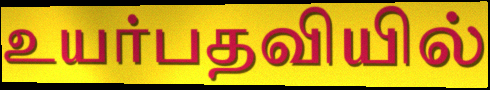
உயர்பதவியில்